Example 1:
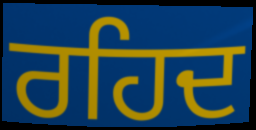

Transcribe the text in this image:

ਰਹਿਦ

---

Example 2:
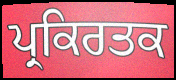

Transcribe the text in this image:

ਪ੍ਰਕਿਰਤਕ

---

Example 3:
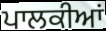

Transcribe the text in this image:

ਪਾਲਕੀਆਂ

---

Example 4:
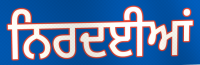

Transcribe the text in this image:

ਨਿਰਦਈਆਂ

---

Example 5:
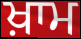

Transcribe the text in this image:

ਖ਼ਾਮ